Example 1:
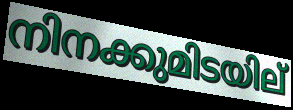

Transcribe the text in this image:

നിനക്കുമിടയില്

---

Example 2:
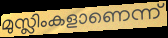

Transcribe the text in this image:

മുസ്ലിംകളാണെന്ന്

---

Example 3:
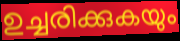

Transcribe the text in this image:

ഉച്ചരിക്കുകയും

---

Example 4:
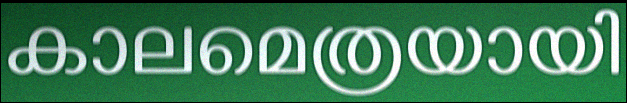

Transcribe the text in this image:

കാലമെത്രയായി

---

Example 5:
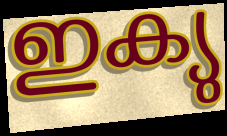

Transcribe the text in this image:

ഇക്യു